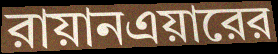
রায়ানএয়ারের